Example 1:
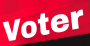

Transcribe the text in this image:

Voter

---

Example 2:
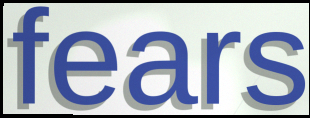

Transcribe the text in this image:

fears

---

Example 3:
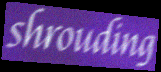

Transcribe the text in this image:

shrouding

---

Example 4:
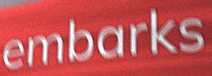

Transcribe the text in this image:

embarks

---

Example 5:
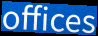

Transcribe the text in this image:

offices